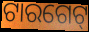
ଟାରଗେଟ୍